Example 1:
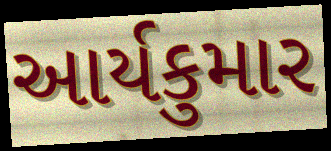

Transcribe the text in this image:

આર્યકુમાર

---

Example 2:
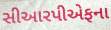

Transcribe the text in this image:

સીઆરપીએફના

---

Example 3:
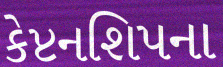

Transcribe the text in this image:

કેપ્ટનશિપના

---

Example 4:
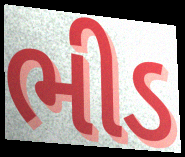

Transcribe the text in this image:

ભીડ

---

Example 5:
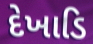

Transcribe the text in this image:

દેખાડિ